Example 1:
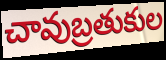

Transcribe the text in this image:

చావుబ్రతుకుల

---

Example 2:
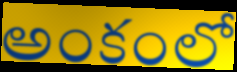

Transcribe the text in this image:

అంకంలో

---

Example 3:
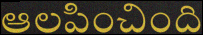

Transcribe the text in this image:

ఆలపించింది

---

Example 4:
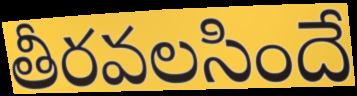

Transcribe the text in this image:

తీరవలసిందే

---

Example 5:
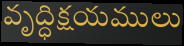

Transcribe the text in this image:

వృద్ధిక్షయములు